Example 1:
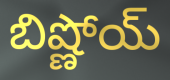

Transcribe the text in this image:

బిష్ణోయ్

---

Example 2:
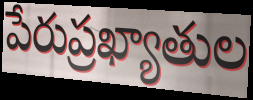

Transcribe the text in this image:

పేరుప్రఖ్యాతుల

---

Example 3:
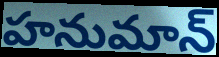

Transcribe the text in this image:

హనుమాన్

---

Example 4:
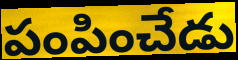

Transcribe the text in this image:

పంపించేడు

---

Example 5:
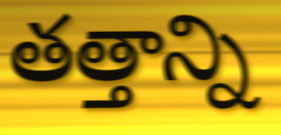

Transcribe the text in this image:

తత్తాన్ని